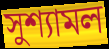
সুশ্যামল